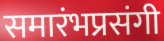
समारंभप्रसंगी